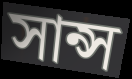
সান্স